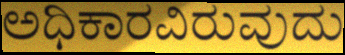
ಅಧಿಕಾರವಿರುವುದು